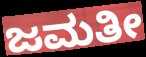
ಜಮತೀ